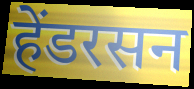
हेंडरसन